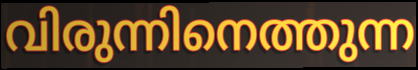
വിരുന്നിനെത്തുന്ന